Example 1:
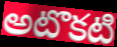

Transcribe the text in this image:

అటొకటి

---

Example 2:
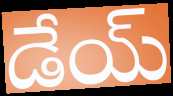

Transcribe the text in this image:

డేయ్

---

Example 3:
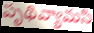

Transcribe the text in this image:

పృథివ్యామసి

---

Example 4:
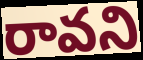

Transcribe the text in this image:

రావని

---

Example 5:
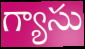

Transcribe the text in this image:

గ్యాసు